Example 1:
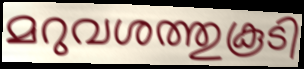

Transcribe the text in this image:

മറുവശത്തുകൂടി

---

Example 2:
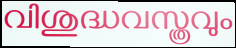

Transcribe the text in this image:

വിശുദ്ധവസ്ത്രവും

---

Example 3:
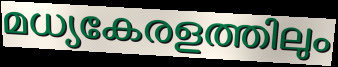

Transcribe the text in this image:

മധ്യകേരളത്തിലും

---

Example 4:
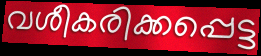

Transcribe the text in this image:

വശീകരിക്കപ്പെട്ട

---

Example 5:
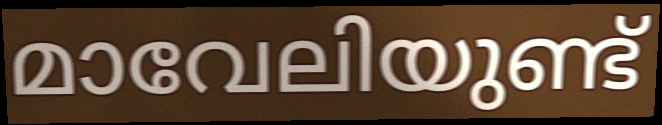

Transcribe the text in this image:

മാവേലിയുണ്ട്